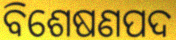
ବିଶେଷଣପଦ